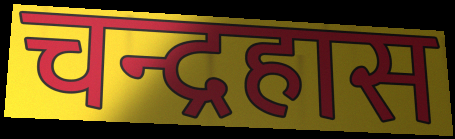
चन्द्रहास